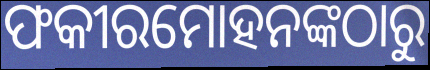
ଫକୀରମୋହନଙ୍କଠାରୁ